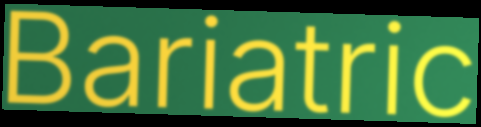
Bariatric